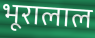
भूरालाल